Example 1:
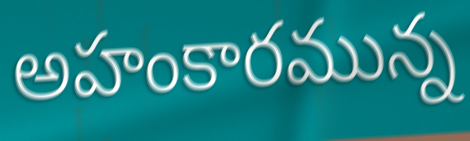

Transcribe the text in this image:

అహంకారమున్న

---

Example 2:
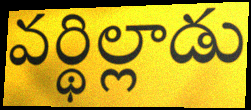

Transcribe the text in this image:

వర్థిల్లాడు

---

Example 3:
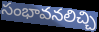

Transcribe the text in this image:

సంభావనలిచ్చి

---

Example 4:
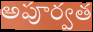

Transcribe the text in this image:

అపూర్వత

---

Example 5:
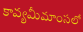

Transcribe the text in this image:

కావ్యమీమాంసలో